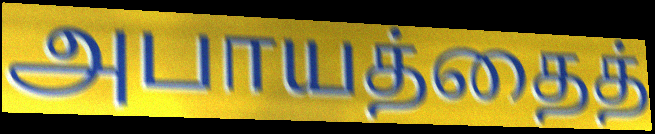
அபாயத்தைத்